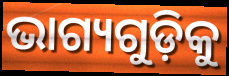
ଭାଗ୍ୟଗୁଡ଼ିକୁ